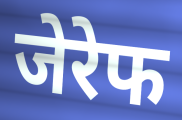
जेरेफ